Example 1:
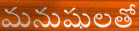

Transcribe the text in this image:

మనుషులతో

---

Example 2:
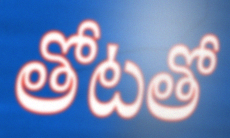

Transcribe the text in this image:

తోటతో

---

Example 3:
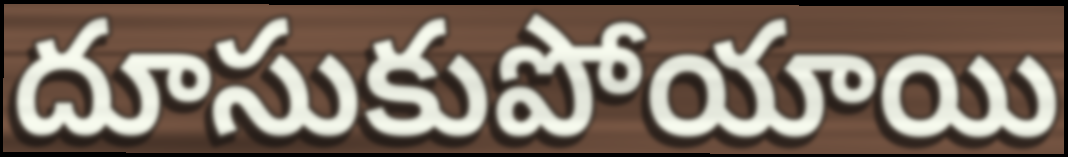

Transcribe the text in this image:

దూసుకుపోయాయి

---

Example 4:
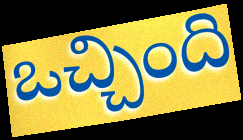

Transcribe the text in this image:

ఒచ్చింది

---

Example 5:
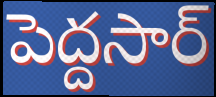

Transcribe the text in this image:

పెద్దసార్